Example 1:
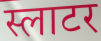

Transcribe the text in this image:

स्लाटर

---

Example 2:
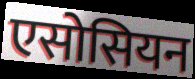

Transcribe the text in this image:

एसोसियन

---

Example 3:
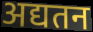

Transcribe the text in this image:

अद्यतन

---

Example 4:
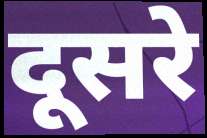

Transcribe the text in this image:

दूसरे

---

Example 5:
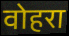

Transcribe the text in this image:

वोहरा